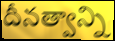
దీనత్వాన్ని